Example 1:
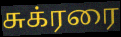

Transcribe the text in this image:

சுக்ரரை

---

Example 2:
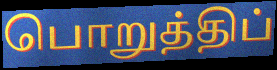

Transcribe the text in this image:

பொறுத்திப்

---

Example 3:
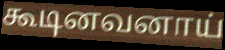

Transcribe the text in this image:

கூடினவனாய்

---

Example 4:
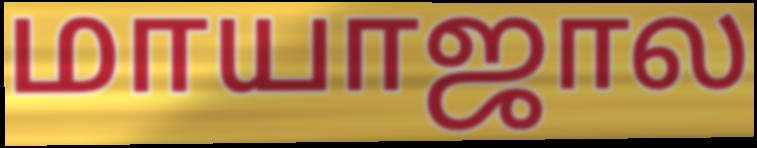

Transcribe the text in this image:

மாயாஜால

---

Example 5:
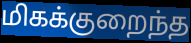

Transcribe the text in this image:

மிகக்குறைந்த